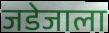
जडेजाला